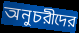
অনুচরীদের